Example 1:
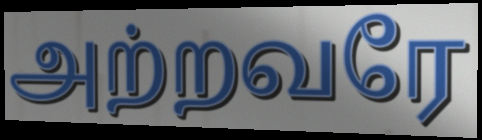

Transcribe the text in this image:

அற்றவரே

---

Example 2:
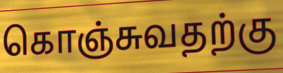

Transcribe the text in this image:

கொஞ்சுவதற்கு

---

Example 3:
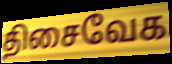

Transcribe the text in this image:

திசைவேக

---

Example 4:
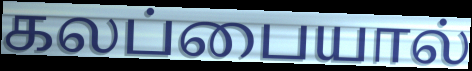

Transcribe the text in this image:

கலப்பையால்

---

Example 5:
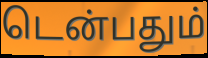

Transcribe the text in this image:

டென்பதும்